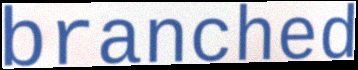
branched